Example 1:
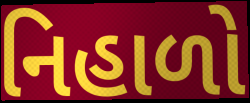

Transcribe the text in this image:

નિહાળો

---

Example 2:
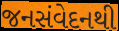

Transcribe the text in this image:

જનસંવેદનથી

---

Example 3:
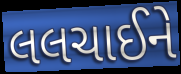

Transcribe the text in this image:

લલચાઈને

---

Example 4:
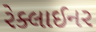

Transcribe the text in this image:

રેક્લાઈનર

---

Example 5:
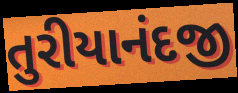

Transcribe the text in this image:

તુરીયાનંદજી